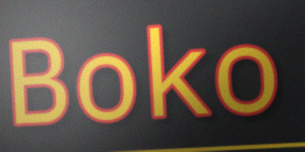
Boko